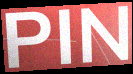
PIN